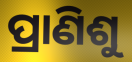
ପ୍ରାଣିଶୁ